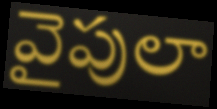
వైపులా